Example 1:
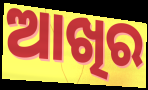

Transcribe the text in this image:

ଆଖିର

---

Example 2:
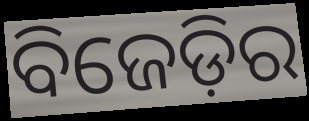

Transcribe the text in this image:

ବିଜେଡ଼ିର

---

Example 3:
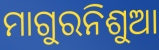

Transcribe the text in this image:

ମାଗୁରନିଶୁଆ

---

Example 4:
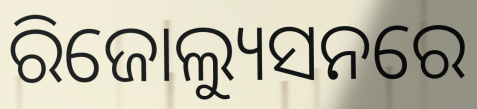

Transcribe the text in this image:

ରିଜୋଲ୍ୟୁସନରେ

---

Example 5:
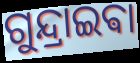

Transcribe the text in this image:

ଗୁନ୍ଦ୍ରାଇଵା